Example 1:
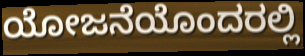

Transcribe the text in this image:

ಯೋಜನೆಯೊಂದರಲ್ಲಿ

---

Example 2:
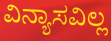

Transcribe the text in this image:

ವಿನ್ಯಾಸವಿಲ್ಲ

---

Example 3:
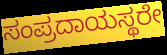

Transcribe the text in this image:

ಸಂಪ್ರದಾಯಸ್ಥರೇ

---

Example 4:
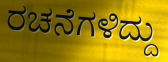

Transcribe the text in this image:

ರಚನೆಗಳಿದ್ದು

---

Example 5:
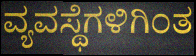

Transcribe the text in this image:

ವ್ಯವಸ್ಥೆಗಳಿಗಿಂತ